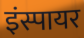
इंस्पायर